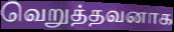
வெறுத்தவனாக